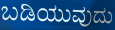
ಬಡಿಯುವುದು